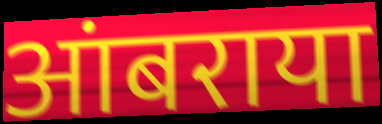
आंबराया